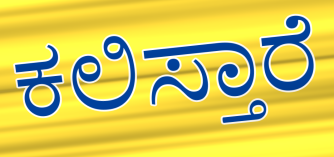
ಕಲಿಸ್ತಾರೆ